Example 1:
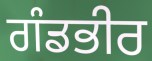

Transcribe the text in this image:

ਗੰਡਭੀਰ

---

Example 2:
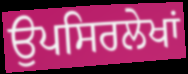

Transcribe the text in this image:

ਉਪਸਿਰਲੇਖਾਂ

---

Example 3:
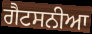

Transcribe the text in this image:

ਗੈਟਸਨੀਆ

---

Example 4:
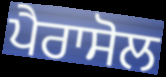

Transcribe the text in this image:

ਪੈਰਾਸੋਲ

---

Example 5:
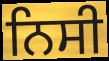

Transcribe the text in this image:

ਨਿਸੀ